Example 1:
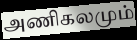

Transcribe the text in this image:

அணிகலமும்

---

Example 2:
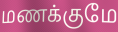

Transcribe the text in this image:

மணக்குமே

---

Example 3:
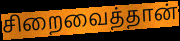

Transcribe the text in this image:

சிறைவைத்தான்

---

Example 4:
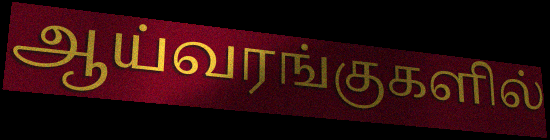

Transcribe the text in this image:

ஆய்வரங்குகளில்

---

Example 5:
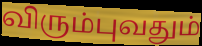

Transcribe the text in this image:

விரும்புவதும்